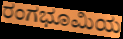
ರಂಗಭೂಮಿಯ